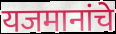
यजमानांचे